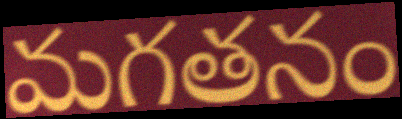
మగతనం